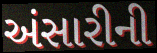
અંસારીની